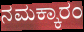
ನಮಕ್ಕಾರಂ